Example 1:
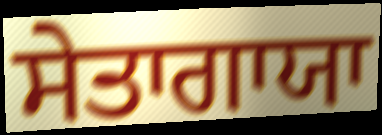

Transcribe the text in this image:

ਸੇਤਾਗਾਯਾ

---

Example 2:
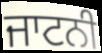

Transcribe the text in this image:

ਜਾਟਨੀ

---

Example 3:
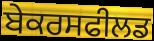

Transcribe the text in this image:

ਬੇਕਰਸਫੀਲਡ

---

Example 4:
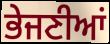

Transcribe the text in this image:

ਭੇਜਣੀਆਂ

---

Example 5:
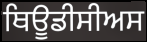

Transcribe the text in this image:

ਥਿਊਡੀਸੀਅਸ